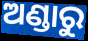
ଅଣ୍ଡାରୁ